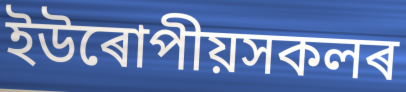
ইউৰোপীয়সকলৰ